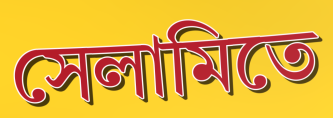
সেলামিতে